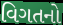
વિગતનો